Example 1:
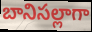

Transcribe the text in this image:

బానిసల్లాగా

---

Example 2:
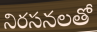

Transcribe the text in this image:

నిరసనలతో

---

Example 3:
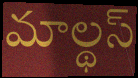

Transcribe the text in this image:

మాల్థస్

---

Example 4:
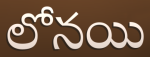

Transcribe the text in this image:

లోనయి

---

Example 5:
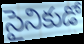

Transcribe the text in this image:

సైనికుడో